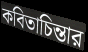
কবিতাচিন্তার